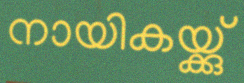
നായികയ്ക്കു്